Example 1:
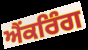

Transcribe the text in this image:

ਐਂਕਰਿੰਗ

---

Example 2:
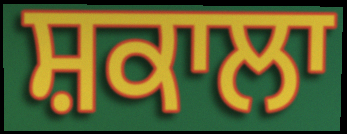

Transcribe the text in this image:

ਸ਼ਕਾਲਾ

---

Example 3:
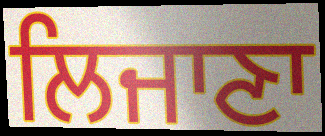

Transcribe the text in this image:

ਲਿਜਾਣਾ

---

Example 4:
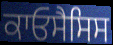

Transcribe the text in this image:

ਕਾਓਸੈਸਿਸ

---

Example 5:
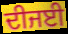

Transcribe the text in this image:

ਦੀਜਈ